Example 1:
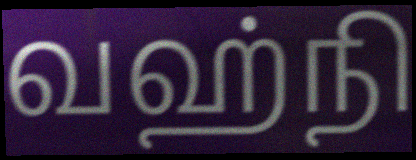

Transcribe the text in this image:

வஹ்நி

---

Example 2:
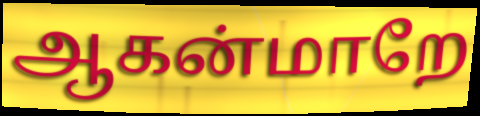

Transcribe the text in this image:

ஆகன்மாறே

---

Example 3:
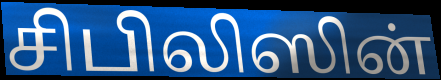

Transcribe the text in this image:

சிபிலிஸின்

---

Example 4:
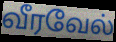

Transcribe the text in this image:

வீரவேல்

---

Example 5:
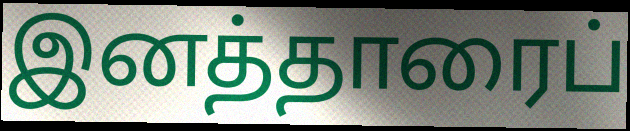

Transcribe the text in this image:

இனத்தாரைப்